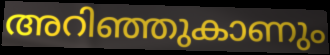
അറിഞ്ഞുകാണും